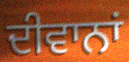
ਦੀਵਾਨਾਂ